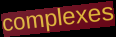
complexes